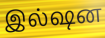
இல்ஷன